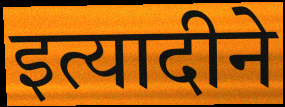
इत्यादीने